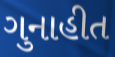
ગુનાહીત